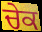
ਚੇਕ